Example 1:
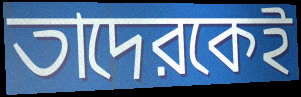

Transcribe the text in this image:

তাদেরকেই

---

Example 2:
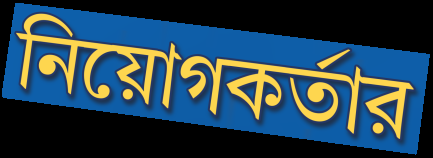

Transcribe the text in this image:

নিয়োগকর্তার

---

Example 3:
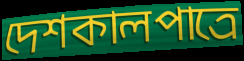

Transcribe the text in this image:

দেশকালপাত্রে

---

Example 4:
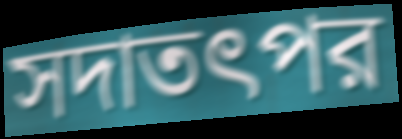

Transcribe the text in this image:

সদাতৎপর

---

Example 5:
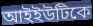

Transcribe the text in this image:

আইইউটিকে